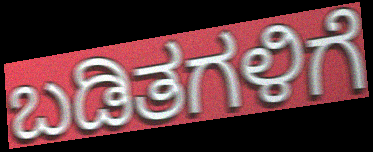
ಬಡಿತಗಳಿಗೆ